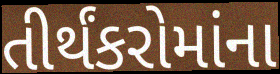
તીર્થંકરોમાંના